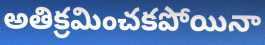
అతిక్రమించకపోయినా